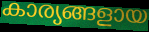
കാര്യങ്ങളായ